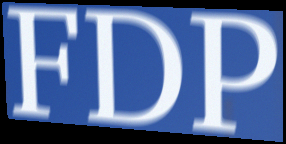
FDP